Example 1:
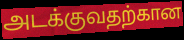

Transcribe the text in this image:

அடக்குவதற்கான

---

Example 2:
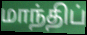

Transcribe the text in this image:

மாந்திப்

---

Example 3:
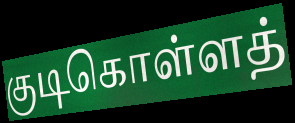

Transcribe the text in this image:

குடிகொள்ளத்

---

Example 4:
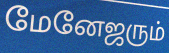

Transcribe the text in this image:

மேனேஜரும்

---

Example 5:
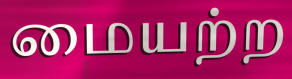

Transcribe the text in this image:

மையற்ற